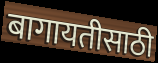
बागायतीसाठी